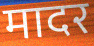
मादर